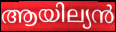
ആയില്യൻ